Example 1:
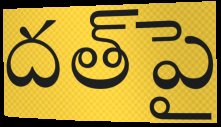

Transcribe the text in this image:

దత్‌పై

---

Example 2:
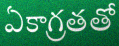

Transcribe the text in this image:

ఏకాగ్రతతో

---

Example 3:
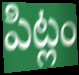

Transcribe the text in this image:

పిట్లం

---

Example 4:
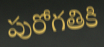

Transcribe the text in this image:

పురోగతికి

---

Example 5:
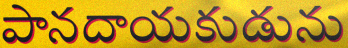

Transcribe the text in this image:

పానదాయకుడును